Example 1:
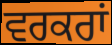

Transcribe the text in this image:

ਵਰਕਰਾਂ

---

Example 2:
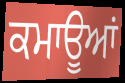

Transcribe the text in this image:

ਕਮਾਊਆਂ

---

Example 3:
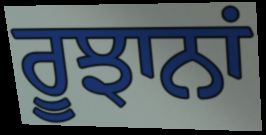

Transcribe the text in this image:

ਰੂਝਾਨਾਂ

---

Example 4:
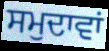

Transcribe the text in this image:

ਸਮੁਦਾਵਾਂ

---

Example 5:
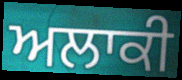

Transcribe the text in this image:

ਅਲਾਕੀ